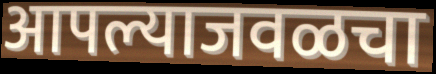
आपल्याजवळचा